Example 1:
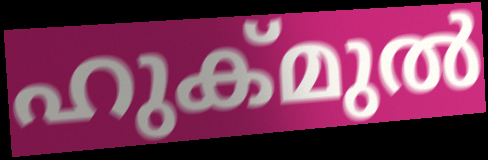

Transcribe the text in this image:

ഹുക്മുൽ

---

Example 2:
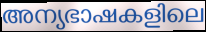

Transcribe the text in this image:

അന്യഭാഷകളിലെ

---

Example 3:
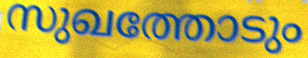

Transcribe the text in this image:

സുഖത്തോടും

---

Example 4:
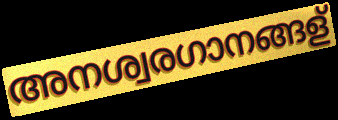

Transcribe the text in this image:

അനശ്വരഗാനങ്ങള്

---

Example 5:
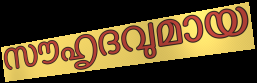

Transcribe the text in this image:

സൗഹൃദവുമായ